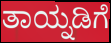
ತಾಯ್ನಡಿಗೆ